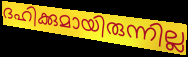
ദഹിക്കുമായിരുന്നില്ല